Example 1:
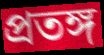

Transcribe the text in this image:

প্রতঙ্গ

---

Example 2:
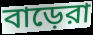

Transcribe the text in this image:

বাড়েরা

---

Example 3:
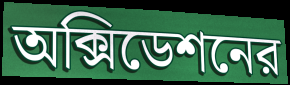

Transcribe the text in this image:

অক্সিডেশনের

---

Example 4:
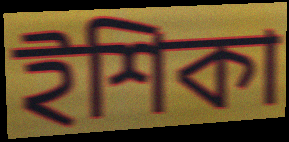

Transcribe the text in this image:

ইশিকা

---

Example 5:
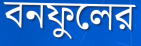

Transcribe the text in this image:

বনফুলের